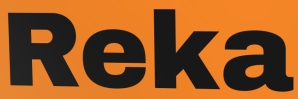
Reka